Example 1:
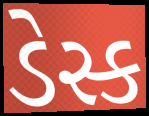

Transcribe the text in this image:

ડેસ્ક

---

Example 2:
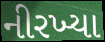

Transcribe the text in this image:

નીરખ્યા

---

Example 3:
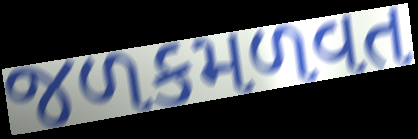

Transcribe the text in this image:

જળકમળવત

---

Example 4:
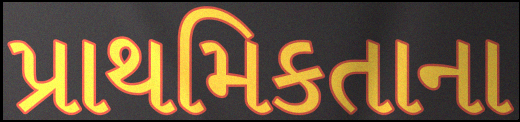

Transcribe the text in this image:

પ્રાથમિકતાના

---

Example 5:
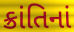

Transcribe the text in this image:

ક્રાંતિનાં